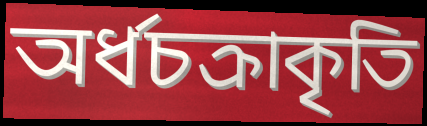
অর্ধচক্রাকৃতি